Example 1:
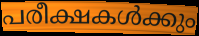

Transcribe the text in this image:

പരീക്ഷകൾക്കും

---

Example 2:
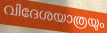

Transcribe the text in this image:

വിദേശയാത്രയും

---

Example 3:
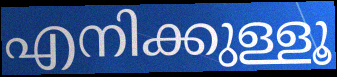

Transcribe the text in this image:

എനിക്കുള്ളൂ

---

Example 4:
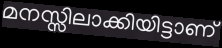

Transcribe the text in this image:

മനസ്സിലാക്കിയിട്ടാണ്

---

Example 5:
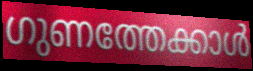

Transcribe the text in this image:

ഗുണത്തേക്കാൾ